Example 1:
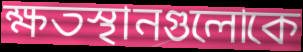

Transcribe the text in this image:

ক্ষতস্থানগুলোকে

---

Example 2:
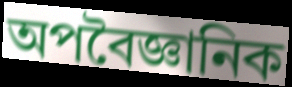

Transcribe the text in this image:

অপবৈজ্ঞানিক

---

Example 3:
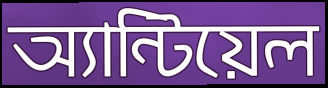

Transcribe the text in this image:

অ্যান্টিয়েল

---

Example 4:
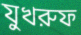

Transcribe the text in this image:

যুখরুফ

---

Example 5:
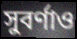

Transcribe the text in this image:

সুবর্ণাও